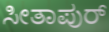
ಸೀತಾಪುರ್